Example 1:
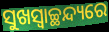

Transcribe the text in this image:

ସୁଖସ୍ଵାଚ୍ଛନ୍ଦ୍ୟରେ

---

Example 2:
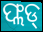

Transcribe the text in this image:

ଫ୍ଲଡ୍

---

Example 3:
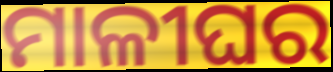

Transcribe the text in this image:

ମାଳୀଘର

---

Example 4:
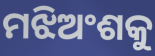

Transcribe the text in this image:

ମଝିଅଂଶକୁ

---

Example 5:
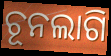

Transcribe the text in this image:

ଚୂନଲାଗି